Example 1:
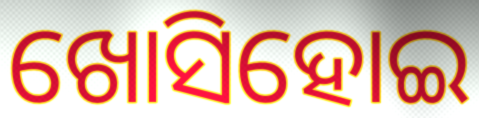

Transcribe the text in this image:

ଖୋସିହୋଇ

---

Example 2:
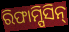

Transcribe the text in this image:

ରିଫାମ୍ପିସିନ୍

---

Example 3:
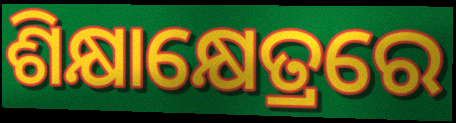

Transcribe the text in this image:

ଶିକ୍ଷାକ୍ଷେତ୍ରରେ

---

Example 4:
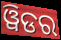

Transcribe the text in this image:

ୱିଡର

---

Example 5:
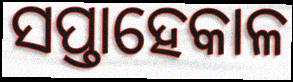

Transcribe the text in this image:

ସପ୍ତାହେକାଳ